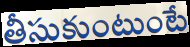
తీసుకుంటుంటే